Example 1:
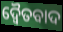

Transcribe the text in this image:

ଦ୍ୱୈତବାଦ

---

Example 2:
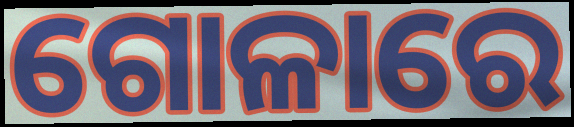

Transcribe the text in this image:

ଗୋଳାରେ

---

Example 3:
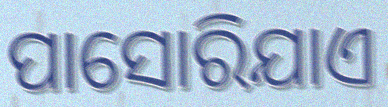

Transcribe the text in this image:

ପାସୋରିଯାଏ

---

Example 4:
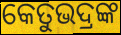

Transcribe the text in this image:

କେତୁଭଦ୍ରଙ୍କ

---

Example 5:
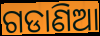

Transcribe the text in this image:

ଗଡାଣିଆ